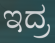
ಇದ್ರ